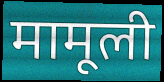
मामूली